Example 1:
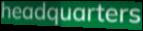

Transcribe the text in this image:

headquarters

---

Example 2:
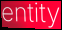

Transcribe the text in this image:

entity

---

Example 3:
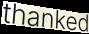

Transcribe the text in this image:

thanked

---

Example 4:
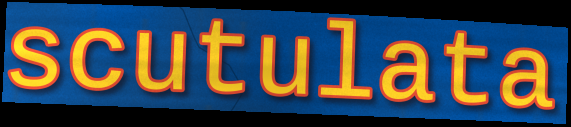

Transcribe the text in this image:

scutulata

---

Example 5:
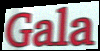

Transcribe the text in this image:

Gala